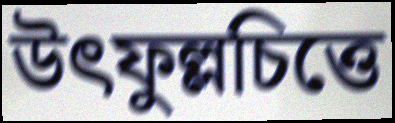
উৎফুল্লচিত্তে